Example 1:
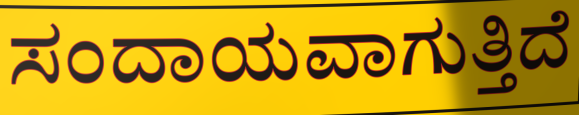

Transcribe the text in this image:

ಸಂದಾಯವಾಗುತ್ತಿದೆ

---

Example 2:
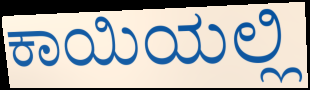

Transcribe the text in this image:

ಕಾಯಿಯಲ್ಲಿ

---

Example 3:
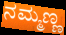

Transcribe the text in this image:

ನಮ್ಮಣ್ಣ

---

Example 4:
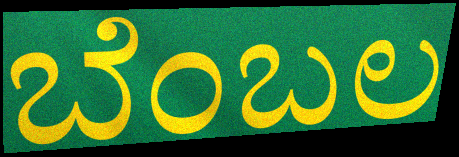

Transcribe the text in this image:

ಬೆಂಬಲ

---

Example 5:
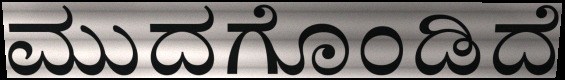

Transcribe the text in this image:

ಮುದಗೊಂಡಿದೆ